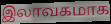
இலாவகமாக